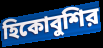
হিকোবুশির